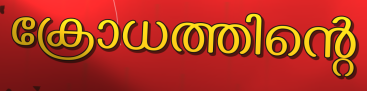
ക്രോധത്തിന്റെ